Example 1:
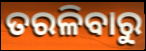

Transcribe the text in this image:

ତରଳିବାରୁ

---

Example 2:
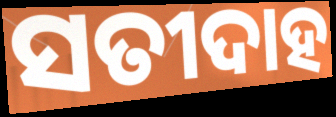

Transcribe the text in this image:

ସତୀଦାହ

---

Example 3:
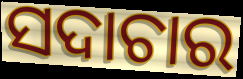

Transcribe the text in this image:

ସଦାଚାର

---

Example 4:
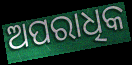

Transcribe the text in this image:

ଅପରାଧିକ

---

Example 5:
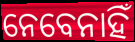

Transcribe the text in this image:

ନେବେନାହିଁ